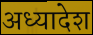
अध्यादेश